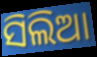
ସିଲିଆ